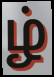
ழ்